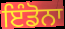
ਇੰਡੋਨਾ